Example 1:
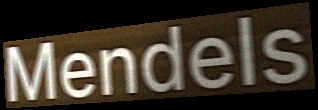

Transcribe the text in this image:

Mendels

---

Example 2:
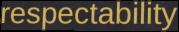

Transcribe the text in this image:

respectability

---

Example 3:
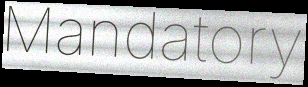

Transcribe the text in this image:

Mandatory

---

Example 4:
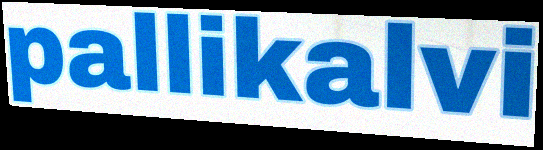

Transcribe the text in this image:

pallikalvi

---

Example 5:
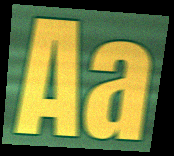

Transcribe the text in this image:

Aa